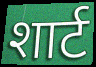
शार्ट